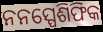
ନନସ୍ପେଶିଫିକ